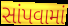
સાંપવામાં